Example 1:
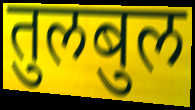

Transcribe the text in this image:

तुलबुल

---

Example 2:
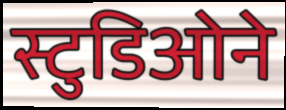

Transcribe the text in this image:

स्टुडिओने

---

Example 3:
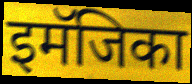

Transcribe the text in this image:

इमॅजिका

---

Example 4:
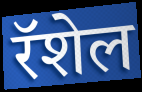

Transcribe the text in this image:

रॅशेल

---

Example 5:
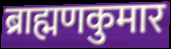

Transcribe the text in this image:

ब्राह्मणकुमार